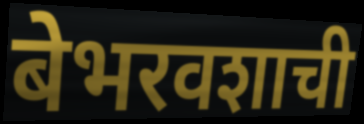
बेभरवशाची